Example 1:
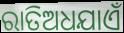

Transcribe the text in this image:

ରାତିଅଧଯାଏଁ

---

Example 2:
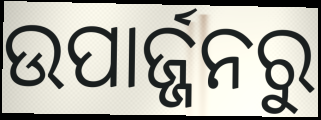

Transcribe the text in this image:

ଉପାର୍ଜ୍ଜନରୁ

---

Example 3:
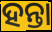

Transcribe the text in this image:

ହନ୍ତା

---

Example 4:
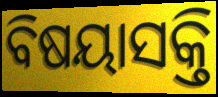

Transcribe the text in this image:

ବିଷୟାସକ୍ତି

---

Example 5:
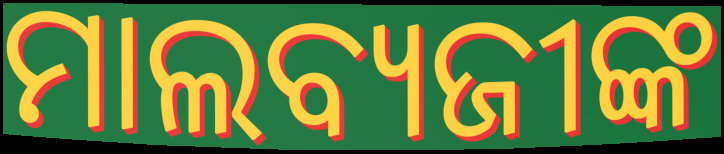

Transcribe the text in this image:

ମାଲବ୍ୟଜୀଙ୍କ